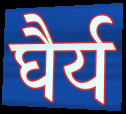
घैर्य